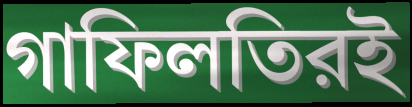
গাফিলতিরই